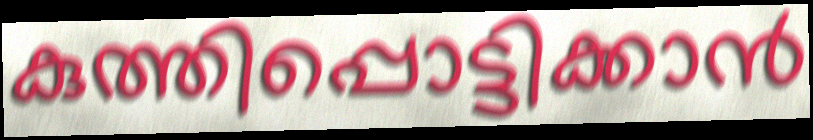
കുത്തിപ്പൊട്ടിക്കാൻ